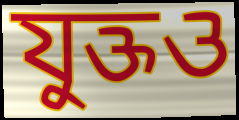
যুক্তও